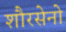
शौरसेनो